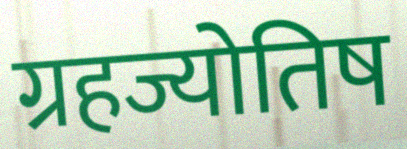
ग्रहज्योतिष